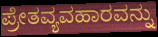
ಪ್ರೇತವ್ಯವಹಾರವನ್ನು